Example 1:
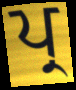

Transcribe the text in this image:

ਪ੍ਰ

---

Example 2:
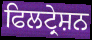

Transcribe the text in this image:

ਫਿਲਟ੍ਰੇਸ਼ਨ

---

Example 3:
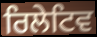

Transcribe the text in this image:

ਰਿਲੇਟਿਵ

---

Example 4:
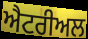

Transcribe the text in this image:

ਐਟਰੀਅਲ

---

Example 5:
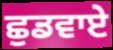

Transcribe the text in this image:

ਛੁਡਵਾਏ